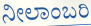
ನೀಲಾಂಬರಿ